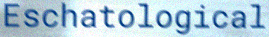
Eschatological